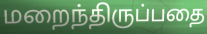
மறைந்திருப்பதை